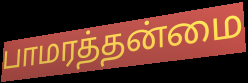
பாமரத்தன்மை